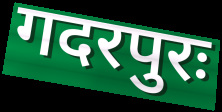
गदरपुरः